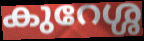
കുറേശ്ശ